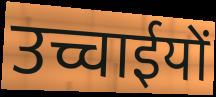
उच्चाईयों